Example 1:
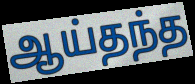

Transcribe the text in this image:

ஆய்தந்த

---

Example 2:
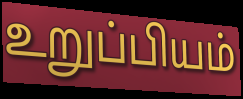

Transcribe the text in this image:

உறுப்பியம்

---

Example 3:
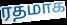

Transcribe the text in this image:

ரதமாக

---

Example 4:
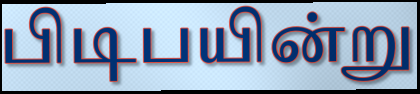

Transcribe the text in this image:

பிடிபயின்று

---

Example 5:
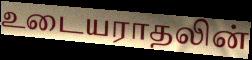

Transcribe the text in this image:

உடையராதலின்